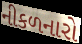
નીકળનારો